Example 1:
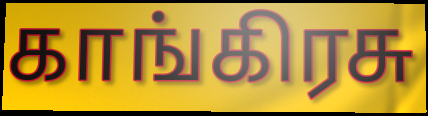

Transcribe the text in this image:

காங்கிரசு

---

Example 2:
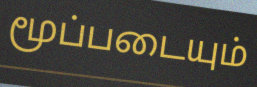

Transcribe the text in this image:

மூப்படையும்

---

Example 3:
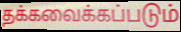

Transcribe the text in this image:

தக்கவைக்கப்படும்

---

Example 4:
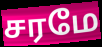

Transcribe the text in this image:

சரமே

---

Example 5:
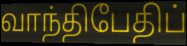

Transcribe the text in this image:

வாந்திபேதிப்